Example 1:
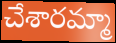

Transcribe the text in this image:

చేశారమ్మా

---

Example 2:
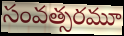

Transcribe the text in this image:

సంవత్సరమూ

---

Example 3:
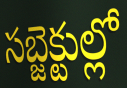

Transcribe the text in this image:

సబ్జెక్టుల్లో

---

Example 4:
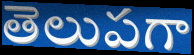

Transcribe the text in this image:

తెలుపగా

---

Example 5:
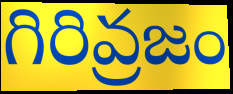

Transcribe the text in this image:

గిరివ్రజం